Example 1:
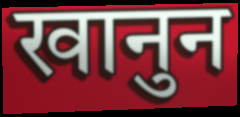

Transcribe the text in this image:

खानुन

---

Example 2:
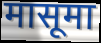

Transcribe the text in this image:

मासूमा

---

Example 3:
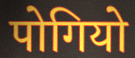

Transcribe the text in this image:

पोगियो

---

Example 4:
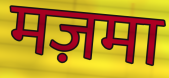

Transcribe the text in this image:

मज़मा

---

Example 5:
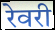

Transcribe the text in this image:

रेवरी